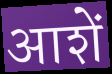
आशें